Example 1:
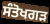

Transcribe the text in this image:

ਸੰਤੋਖਗੜ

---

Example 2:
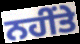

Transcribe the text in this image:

ਨਹੀਂਤੇ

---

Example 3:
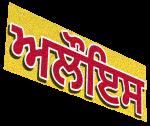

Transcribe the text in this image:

ਅਲੌਇਸ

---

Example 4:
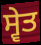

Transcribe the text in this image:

ਸ੍ਵੇਤ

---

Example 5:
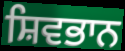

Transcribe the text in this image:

ਸ਼ਿਵਭਾਨ